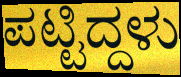
ಪಟ್ಟಿದ್ದಳು